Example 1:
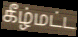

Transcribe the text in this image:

கீழ்மட்ட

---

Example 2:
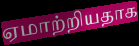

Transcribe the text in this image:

ஏமாற்றியதாக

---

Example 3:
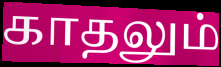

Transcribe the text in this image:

காதலும்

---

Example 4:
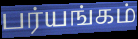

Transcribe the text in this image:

பர்யங்கம்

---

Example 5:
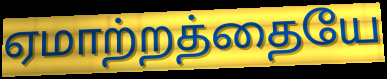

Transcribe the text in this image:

ஏமாற்றத்தையே